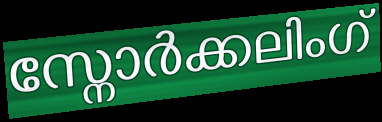
സ്നോർക്കലിംഗ്